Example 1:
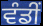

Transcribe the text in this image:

ਵੰਡੀਂ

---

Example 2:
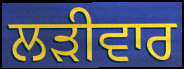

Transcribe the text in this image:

ਲੜੀਵਾਰ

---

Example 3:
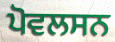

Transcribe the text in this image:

ਪੋਵਲਸਨ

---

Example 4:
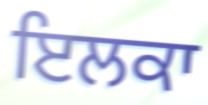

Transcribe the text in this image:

ਇਲਕਾ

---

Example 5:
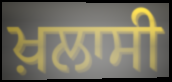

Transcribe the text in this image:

ਖ਼ਲਾਸੀ